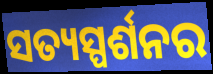
ସତ୍ୟସ୍ପର୍ଶନର